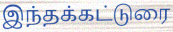
இந்தக்கட்டுரை